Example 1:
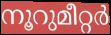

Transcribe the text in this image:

നൂറുമീറ്റർ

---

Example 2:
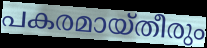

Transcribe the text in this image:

പകരമായ്തീരും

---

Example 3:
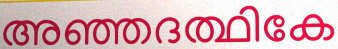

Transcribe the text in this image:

അഞ്ഞദത്ഥികേ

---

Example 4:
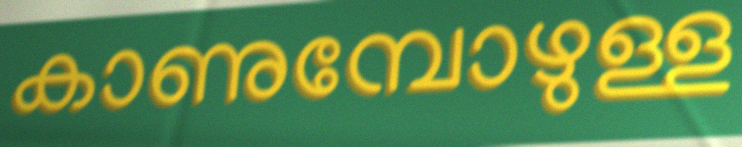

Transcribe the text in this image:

കാണുമ്പോഴുള്ള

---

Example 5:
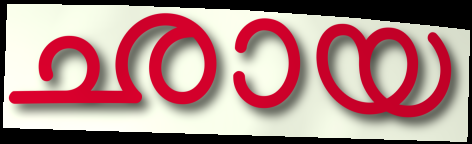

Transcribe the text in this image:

ഛായ